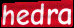
hedra